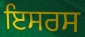
ਇਸਰਸ